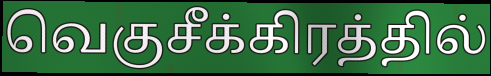
வெகுசீக்கிரத்தில்